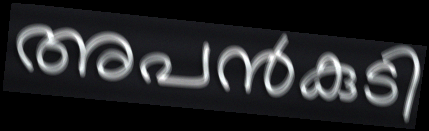
അപൻകുടി